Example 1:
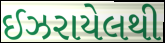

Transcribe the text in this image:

ઈઝરાયેલથી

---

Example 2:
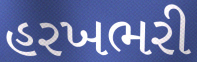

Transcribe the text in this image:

હરખભરી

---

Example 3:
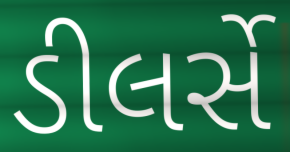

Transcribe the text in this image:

ડીલર્સે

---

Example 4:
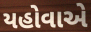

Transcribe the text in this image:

યહોવાએ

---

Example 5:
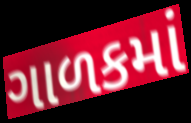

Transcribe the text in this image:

ગાળકમાં